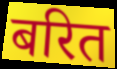
बरित